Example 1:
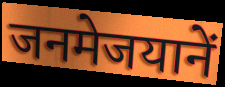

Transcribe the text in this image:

जनमेजयानें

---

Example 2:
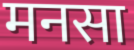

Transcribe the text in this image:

मनसा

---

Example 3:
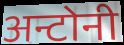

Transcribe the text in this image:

अन्टोनी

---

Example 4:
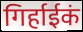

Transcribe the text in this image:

गिर्हाईकं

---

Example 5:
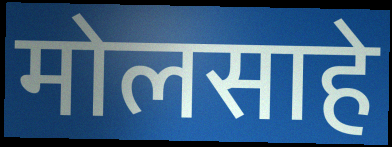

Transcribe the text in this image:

मोलसाहे